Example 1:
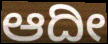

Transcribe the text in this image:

ಆದೀ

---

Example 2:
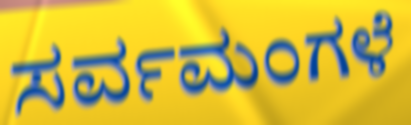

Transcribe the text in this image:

ಸರ್ವಮಂಗಳೆ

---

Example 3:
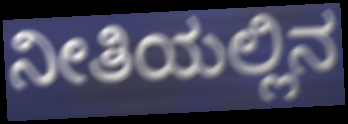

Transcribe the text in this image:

ನೀತಿಯಲ್ಲಿನ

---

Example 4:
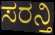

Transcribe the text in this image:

ಸರನ್ತಿ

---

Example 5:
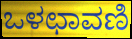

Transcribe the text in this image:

ಒಳಛಾವಣಿ